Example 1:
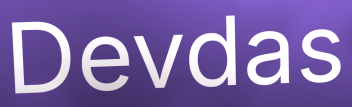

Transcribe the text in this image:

Devdas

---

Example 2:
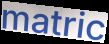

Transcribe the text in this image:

matric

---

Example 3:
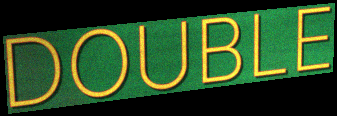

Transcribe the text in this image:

DOUBLE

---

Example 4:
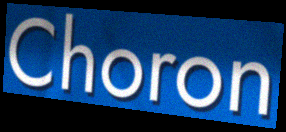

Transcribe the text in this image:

Choron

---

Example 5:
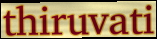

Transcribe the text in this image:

thiruvati